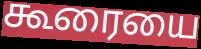
கூரையை